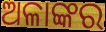
ଅଳାଙ୍କର